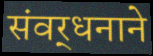
संवर्धनाने